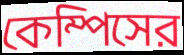
কেম্পিসের